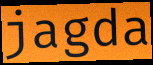
jagda